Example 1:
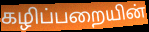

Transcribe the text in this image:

கழிப்பறையின்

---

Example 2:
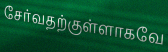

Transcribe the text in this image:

சேர்வதற்குள்ளாகவே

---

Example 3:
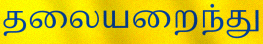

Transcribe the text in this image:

தலையறைந்து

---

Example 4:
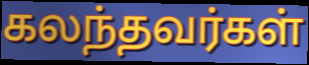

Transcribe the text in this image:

கலந்தவர்கள்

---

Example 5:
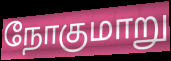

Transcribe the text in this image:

நோகுமாறு